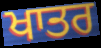
ਖਾਤਰ